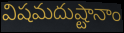
విషమదుష్టానాం